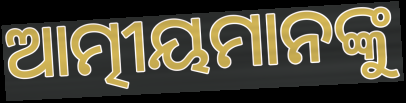
ଆତ୍ମୀୟମାନଙ୍କୁ